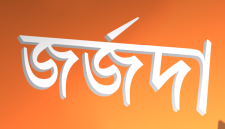
জর্জদা